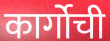
कार्गोची